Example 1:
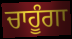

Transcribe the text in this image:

ਚਾਹੂੰਗਾ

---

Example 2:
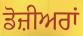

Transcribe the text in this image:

ਡੋਜ਼ੀਅਰਾਂ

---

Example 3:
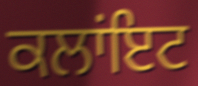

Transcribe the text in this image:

ਕਲਾਂਇਟ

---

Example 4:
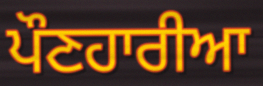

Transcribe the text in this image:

ਪੌਣਹਾਰੀਆ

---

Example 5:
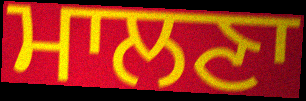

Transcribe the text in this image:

ਮਾਲਣਾ